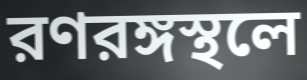
রণরঙ্গস্থলে